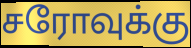
சரோவுக்கு